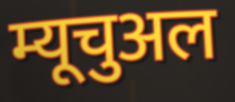
म्यूचुअल